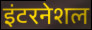
इंटरनेशल